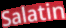
Salatin